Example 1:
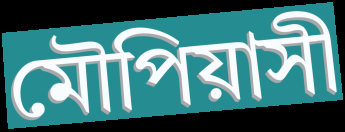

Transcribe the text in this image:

মৌপিয়াসী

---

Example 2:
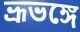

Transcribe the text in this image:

ভ্রূভঙ্গে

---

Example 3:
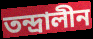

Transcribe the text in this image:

তন্দ্রালীন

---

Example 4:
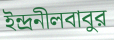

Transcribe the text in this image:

ইন্দ্রনীলবাবুর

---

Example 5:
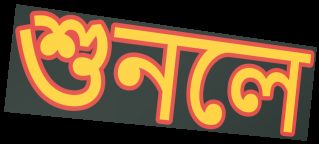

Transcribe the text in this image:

শুনলে